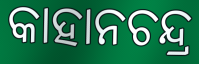
କାହାନଚନ୍ଦ୍ର